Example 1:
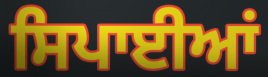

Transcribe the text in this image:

ਸਿਪਾਈਆਂ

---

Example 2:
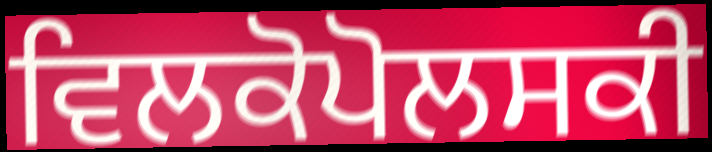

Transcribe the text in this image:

ਵਿਲਕੋਪੋਲਸਕੀ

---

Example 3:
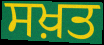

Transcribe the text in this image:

ਸਖ਼ਤ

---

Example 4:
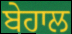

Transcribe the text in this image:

ਬੇਹਾਲ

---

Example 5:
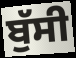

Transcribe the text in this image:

ਬੁੱਸੀ